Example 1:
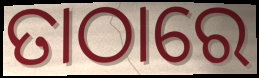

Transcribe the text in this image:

ତାଠାରେ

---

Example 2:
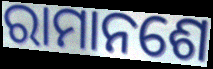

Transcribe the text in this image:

ରାମାନଶେ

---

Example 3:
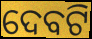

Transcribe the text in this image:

ଦେବଟି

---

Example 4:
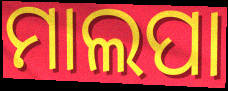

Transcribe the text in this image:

ମାଲପା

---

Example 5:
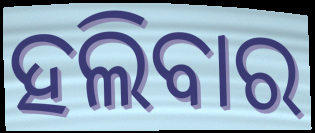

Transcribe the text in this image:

ହଲିବାର